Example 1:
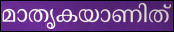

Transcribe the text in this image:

മാതൃകയാണിത്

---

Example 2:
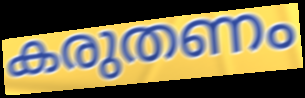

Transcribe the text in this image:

കരുതണം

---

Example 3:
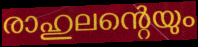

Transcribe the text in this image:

രാഹുലന്റെയും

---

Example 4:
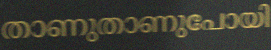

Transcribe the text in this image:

താണുതാണുപോയി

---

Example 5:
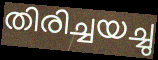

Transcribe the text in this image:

തിരിച്ചയച്ചു